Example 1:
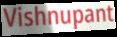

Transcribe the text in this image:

Vishnupant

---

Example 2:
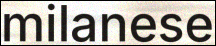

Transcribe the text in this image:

milanese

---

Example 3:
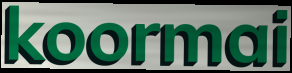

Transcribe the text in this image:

koormai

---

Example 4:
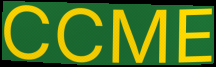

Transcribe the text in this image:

CCME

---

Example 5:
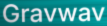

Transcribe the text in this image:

Gravwav